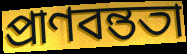
প্রাণবন্ততা